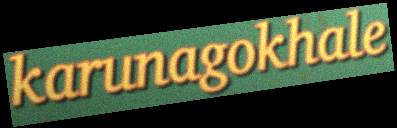
karunagokhale